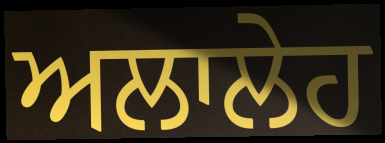
ਅਲਾਲੇਹ